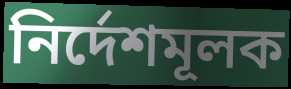
নির্দেশমূলক